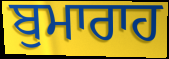
ਬੁਮਾਰਾਹ